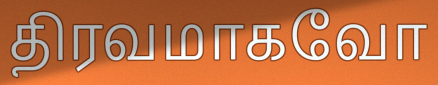
திரவமாகவோ